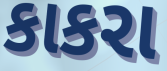
કાકરા